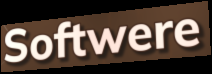
Softwere